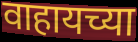
वाहायच्या